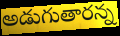
అడుగుతారన్న